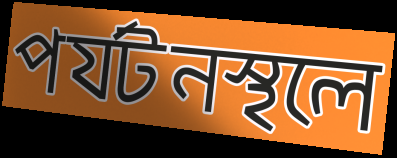
পর্যটনস্থলে